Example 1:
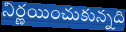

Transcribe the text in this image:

నిర్ణయించుకున్నది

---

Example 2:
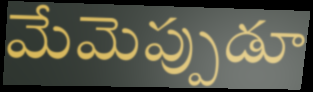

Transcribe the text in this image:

మేమెప్పుడూ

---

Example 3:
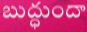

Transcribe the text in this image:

బుద్ధుందా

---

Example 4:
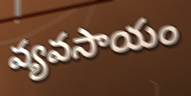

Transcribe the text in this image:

వ్యవసాయం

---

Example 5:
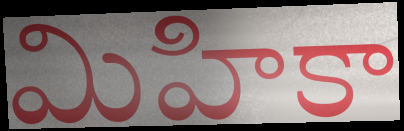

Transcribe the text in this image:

మిహికా